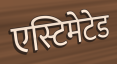
एस्टिमेटेड